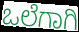
ಒಲೆಗಾಗಿ